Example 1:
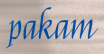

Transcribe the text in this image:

pakam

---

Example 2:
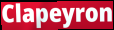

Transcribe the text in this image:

Clapeyron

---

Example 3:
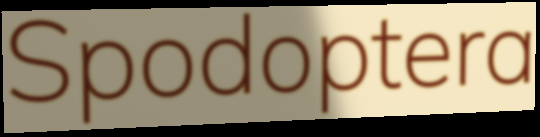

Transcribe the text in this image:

Spodoptera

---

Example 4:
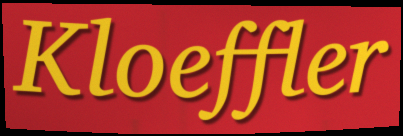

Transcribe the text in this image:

Kloeffler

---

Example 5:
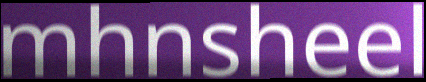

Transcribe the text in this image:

mhnsheel